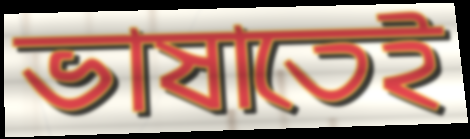
ভাষাতেই